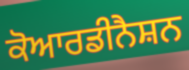
ਕੋਆਰਡੀਨੈਸ਼ਨ